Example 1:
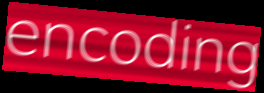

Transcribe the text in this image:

encoding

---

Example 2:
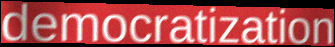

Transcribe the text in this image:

democratization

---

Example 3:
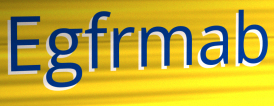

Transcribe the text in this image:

Egfrmab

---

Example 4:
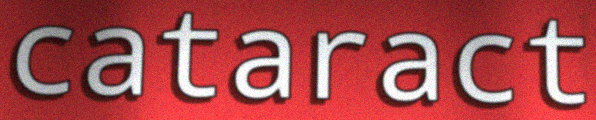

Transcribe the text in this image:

cataract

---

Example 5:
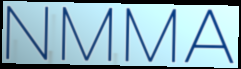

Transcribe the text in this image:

NMMA